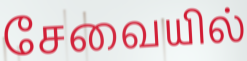
சேவையில்